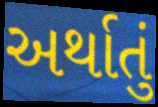
અર્થાતું